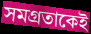
সমগ্রতাকেই